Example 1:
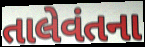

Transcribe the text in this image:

તાલેવંતના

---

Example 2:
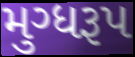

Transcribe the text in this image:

મુગ્ધરૂપ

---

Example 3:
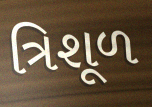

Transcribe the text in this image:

ત્રિશૂળ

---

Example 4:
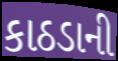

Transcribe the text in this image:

કાઠડાની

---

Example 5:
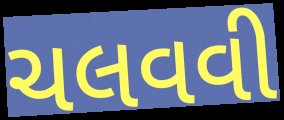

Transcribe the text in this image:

ચલવવી